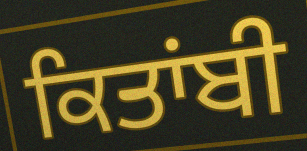
ਕਿਤਾਂਬੀ